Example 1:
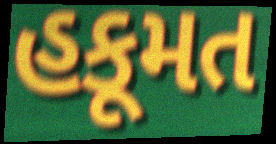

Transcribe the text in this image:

હકૂમત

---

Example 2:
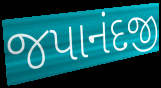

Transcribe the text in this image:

જપાનંદજી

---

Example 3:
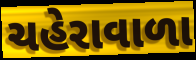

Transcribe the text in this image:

ચહેરાવાળા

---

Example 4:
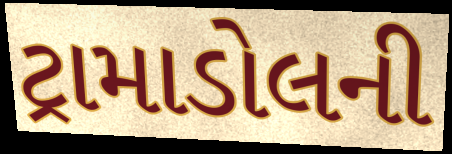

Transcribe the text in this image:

ટ્રામાડોલની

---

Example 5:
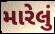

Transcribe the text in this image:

મારેલું